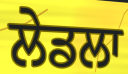
ਲੇਡਲਾ